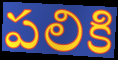
పలికి